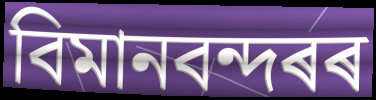
বিমানবন্দৰৰ